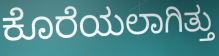
ಕೊರೆಯಲಾಗಿತ್ತು